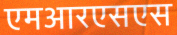
एमआरएसएस